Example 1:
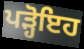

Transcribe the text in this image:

ਪੜ੍ਹੋਇਹ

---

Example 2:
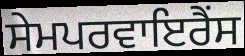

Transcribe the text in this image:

ਸੇਮਪਰਵਾਇਰੈਂਸ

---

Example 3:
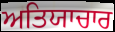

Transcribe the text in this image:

ਅਤਿਯਾਚਾਰ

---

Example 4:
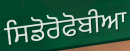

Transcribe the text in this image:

ਸਿਡੋਰੋਫੋਬੀਆ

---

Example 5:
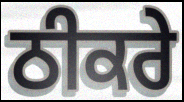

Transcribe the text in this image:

ਠੀਕਰੇ